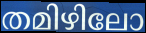
തമിഴിലോ